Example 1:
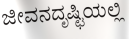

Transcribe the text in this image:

ಜೀವನದೃಷ್ಟಿಯಲ್ಲಿ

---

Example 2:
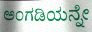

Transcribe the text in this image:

ಅಂಗಡಿಯನ್ನೇ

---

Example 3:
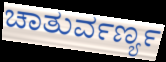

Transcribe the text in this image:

ಚಾತುರ್ವರ್ಣ್ಯ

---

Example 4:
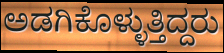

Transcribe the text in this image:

ಅಡಗಿಕೊಳ್ಳುತ್ತಿದ್ದರು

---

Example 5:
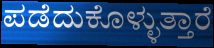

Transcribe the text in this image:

ಪಡೆದುಕೊಳ್ಳುತ್ತಾರೆ